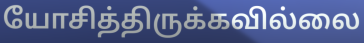
யோசித்திருக்கவில்லை